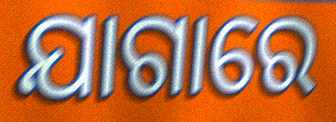
ଯାଗାରେ